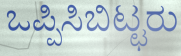
ಒಪ್ಪಿಸಿಬಿಟ್ಟರು